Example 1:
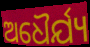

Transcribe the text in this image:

ଅଧୈର୍ଯ୍ୟ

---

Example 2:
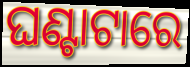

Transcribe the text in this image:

ଘଣ୍ଟାଟାରେ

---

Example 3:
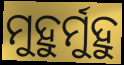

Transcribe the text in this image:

ମୁହୁର୍ମୁହୁ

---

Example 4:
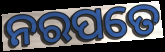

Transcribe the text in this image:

ନରପତେ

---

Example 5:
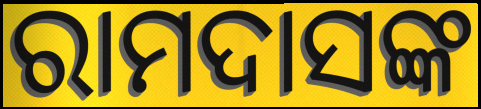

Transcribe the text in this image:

ରାମଦାସଙ୍କ